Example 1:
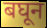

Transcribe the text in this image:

बघून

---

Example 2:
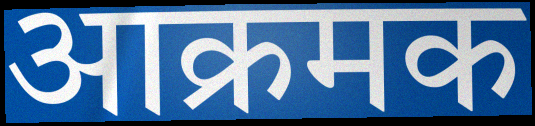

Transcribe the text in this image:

आक्रमक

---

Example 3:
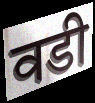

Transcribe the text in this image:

वडी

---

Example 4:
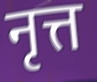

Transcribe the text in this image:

नृत्त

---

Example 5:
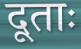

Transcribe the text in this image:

दूताः